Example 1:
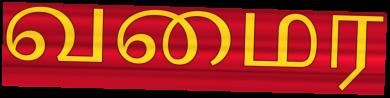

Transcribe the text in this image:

வமைர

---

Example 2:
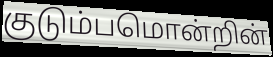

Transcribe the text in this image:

குடும்பமொன்றின்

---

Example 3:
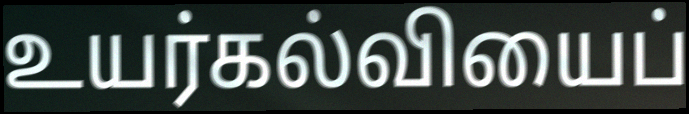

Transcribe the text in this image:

உயர்கல்வியைப்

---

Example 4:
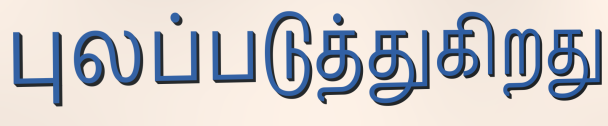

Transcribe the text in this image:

புலப்படுத்துகிறது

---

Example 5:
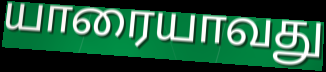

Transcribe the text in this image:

யாரையாவது